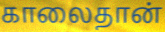
காலைதான்